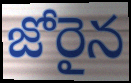
జోరైన